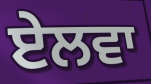
ਏਲਵਾ